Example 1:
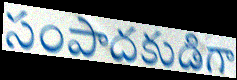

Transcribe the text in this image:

సంపాదకుడిగా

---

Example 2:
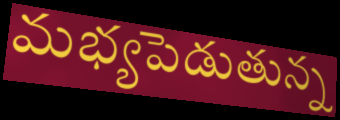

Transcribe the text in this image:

మభ్యపెడుతున్న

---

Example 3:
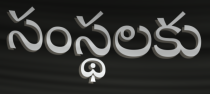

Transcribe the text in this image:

సంస్థలకు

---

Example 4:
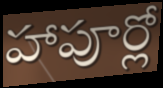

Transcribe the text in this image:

హాపూర్లో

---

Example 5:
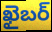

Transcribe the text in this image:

ఖైబర్